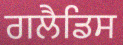
ਗਲੈਡਿਸ